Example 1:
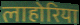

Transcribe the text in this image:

लाहोरिया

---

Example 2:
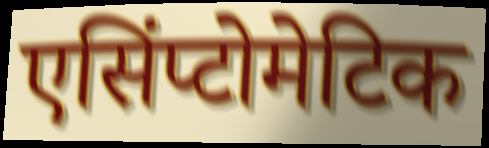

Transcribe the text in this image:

एसिंप्टोमेटिक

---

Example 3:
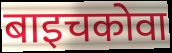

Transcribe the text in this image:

बाइचकोवा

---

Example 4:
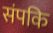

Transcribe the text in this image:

संपकि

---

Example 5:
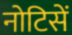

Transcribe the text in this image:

नोटिसें